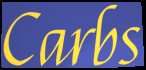
Carbs